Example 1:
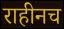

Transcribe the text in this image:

राहीनच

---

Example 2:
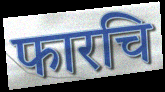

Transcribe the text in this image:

फारचि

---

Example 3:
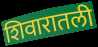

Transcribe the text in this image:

शिवारातली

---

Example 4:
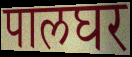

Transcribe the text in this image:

पालघर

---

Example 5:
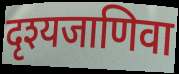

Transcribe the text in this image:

दृश्यजाणिवा